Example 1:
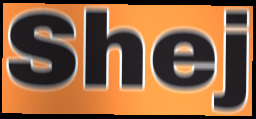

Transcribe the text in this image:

Shej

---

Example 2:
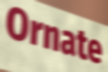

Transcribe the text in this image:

Ornate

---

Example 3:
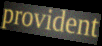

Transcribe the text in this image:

provident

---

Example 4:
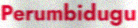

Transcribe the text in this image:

Perumbidugu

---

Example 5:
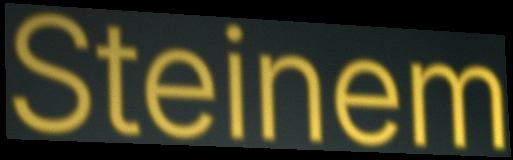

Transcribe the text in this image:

Steinem